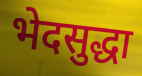
भेदसुद्धा